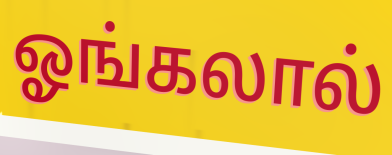
ஓங்கலால்